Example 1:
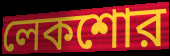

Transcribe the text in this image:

লেকশোর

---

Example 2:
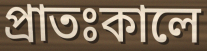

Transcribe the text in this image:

প্রাতঃকালে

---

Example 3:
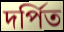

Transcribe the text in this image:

দর্পিত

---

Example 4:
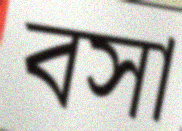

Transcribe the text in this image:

বসা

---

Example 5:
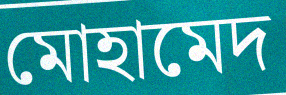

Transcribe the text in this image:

মোহামেদ